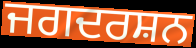
ਜਗਦਰਸ਼ਨ